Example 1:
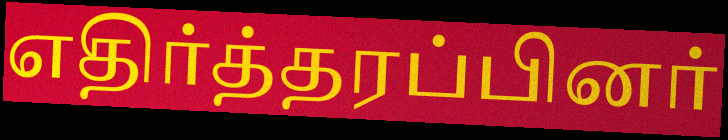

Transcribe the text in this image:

எதிர்த்தரப்பினர்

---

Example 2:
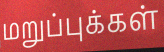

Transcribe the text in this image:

மறுப்புக்கள்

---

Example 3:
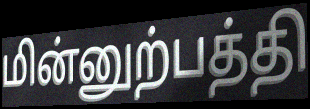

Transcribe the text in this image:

மின்னுற்பத்தி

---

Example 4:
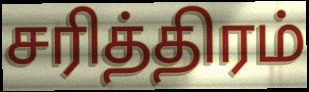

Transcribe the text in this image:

சரித்திரம்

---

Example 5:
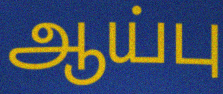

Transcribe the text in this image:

ஆய்பு